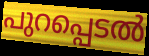
പുറപ്പെടൽ